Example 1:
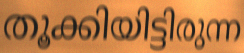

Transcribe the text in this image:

തൂക്കിയിട്ടിരുന്ന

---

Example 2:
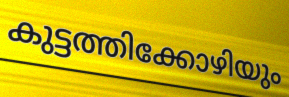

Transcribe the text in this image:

കുട്ടത്തിക്കോഴിയും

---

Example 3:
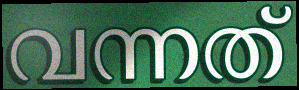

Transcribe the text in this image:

വന്നത്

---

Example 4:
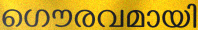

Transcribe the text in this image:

ഗൌരവമായി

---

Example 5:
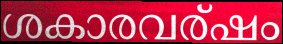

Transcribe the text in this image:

ശകാരവര്ഷം